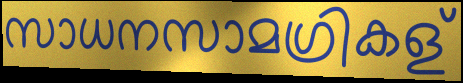
സാധനസാമഗ്രികള്